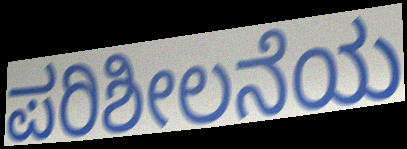
ಪರಿಶೀಲನೆಯ